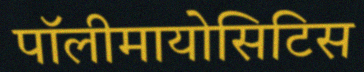
पॉलीमायोसिटिस